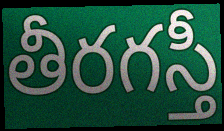
తీరగస్తీ